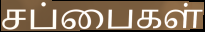
சப்பைகள்